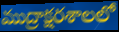
ముద్రాక్షరశాలలో